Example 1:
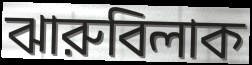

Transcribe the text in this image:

ঝাৰুবিলাক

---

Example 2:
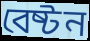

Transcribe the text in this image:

বেষ্টন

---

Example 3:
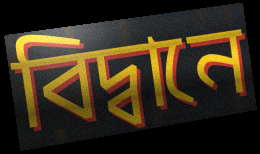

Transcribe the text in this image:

বিদ্বানে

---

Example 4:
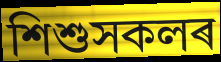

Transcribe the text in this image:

শিশুসকলৰ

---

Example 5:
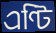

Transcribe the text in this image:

এণ্টি